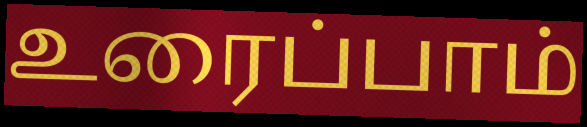
உரைப்பாம்